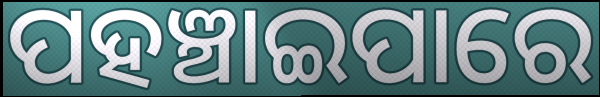
ପହଞ୍ଚାଇପାରେ